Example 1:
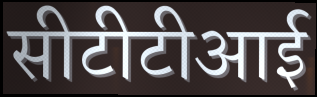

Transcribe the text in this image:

सीटीटीआई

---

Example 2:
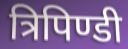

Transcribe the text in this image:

त्रिपिण्डी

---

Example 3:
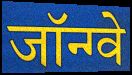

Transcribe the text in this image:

जॉन्ग्वे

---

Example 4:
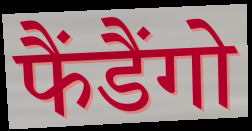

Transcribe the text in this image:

फैंडैंगो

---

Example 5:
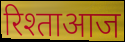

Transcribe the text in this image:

रिश्ताआज